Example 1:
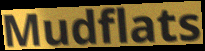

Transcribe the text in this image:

Mudflats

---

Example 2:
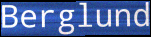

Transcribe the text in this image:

Berglund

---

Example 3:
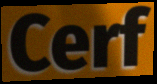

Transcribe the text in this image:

Cerf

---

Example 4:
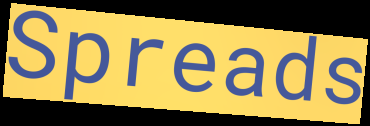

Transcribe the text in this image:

Spreads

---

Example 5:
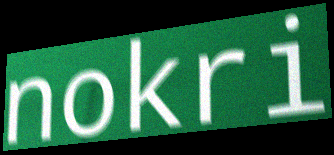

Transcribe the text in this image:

nokri